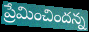
ప్రేమించిందన్న